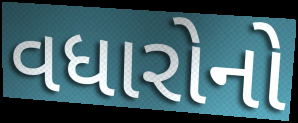
વધારોનો